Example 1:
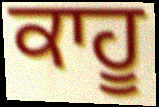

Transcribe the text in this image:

ਕਾਹੂ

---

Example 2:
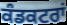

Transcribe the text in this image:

ਕੰਡਕਟਰਾਂ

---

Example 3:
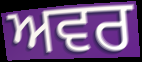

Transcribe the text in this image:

ਅਵਰ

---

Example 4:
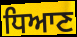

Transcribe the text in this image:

ਧਿਆਣ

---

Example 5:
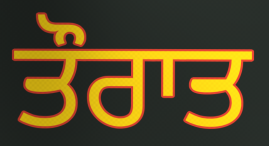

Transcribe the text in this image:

ਤੌਰਾਤ